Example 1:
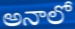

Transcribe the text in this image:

అనాలో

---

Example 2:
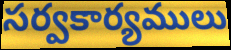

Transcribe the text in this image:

సర్వకార్యములు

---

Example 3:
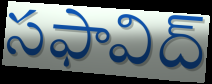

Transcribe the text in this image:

సఫావిద్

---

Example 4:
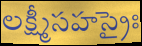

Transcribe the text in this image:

లక్ష్మీసహస్రైః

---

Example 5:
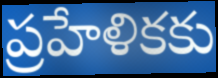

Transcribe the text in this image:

ప్రహేళికకు